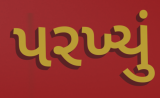
પરખ્યું